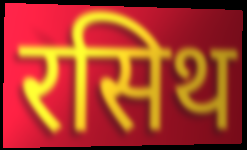
रसिथ